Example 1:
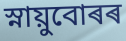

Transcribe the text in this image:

স্নায়ুবোৰৰ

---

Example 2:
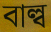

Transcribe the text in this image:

বাল্ব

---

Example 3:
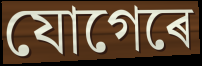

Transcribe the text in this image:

যোগেৰে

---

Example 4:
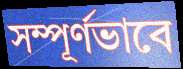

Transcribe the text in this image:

সম্পূৰ্ণভাবে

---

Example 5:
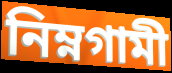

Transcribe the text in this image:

নিম্নগামী